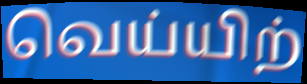
வெய்யிற்